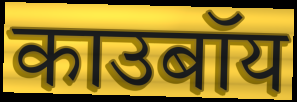
काउबॉय